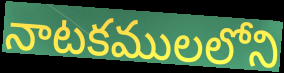
నాటకములలోని